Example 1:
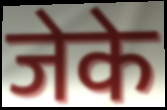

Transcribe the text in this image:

जेके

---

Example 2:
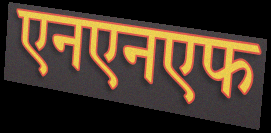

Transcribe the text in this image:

एनएनएफ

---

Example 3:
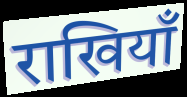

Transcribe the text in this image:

राखियाँ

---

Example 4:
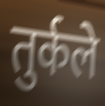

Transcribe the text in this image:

तुर्कले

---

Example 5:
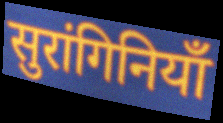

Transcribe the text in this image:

सुरांगिनियाँ